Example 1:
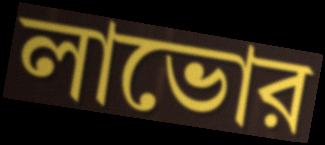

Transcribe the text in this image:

লাভোর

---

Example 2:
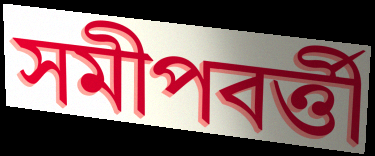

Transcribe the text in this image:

সমীপবর্ত্তী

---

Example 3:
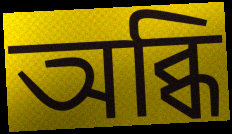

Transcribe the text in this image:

অব্ধি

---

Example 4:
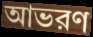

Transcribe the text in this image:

আভরণ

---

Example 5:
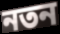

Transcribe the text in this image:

নতন